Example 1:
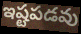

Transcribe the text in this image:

ఇష్టపడవు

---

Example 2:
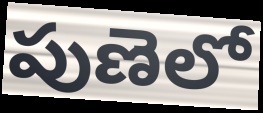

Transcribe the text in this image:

పుణెలో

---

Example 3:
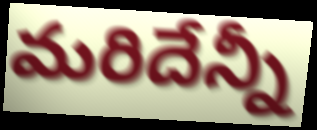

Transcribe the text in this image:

మరిదేన్నీ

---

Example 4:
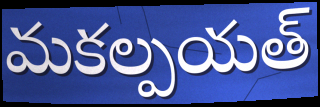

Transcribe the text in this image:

మకల్పయత్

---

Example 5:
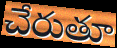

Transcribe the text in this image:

చేరుతూ